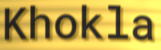
Khokla